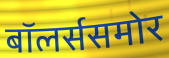
बॉलर्ससमोर